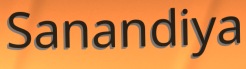
Sanandiya